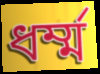
ধৰ্ম্ম